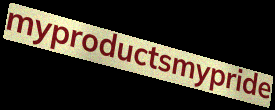
myproductsmypride